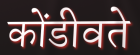
कोंडीवते